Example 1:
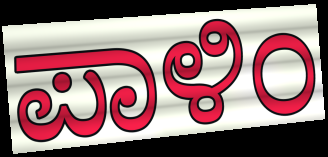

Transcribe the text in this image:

ಪಾಳಿಂ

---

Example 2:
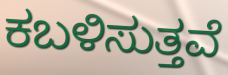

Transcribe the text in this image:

ಕಬಳಿಸುತ್ತವೆ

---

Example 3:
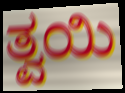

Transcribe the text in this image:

ತ್ವಯಿ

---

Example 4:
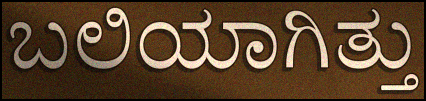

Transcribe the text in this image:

ಬಲಿಯಾಗಿತ್ತು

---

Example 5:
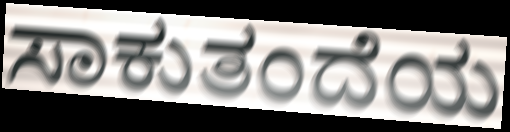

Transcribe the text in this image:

ಸಾಕುತಂದೆಯ